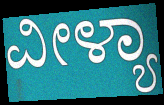
ವೀಳ್ಯಾ